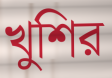
খুশির